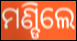
ମଣ୍ଡିଲେ